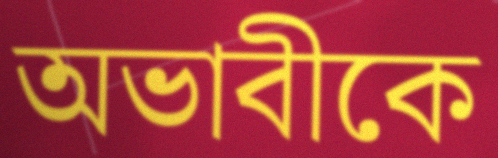
অভাবীকে